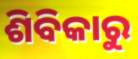
ଶିବିକାରୁ